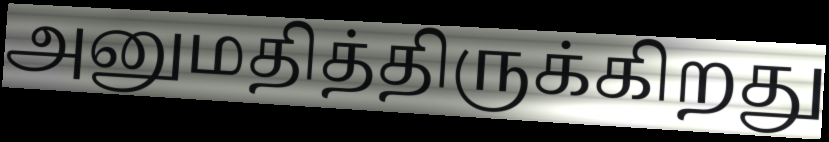
அனுமதித்திருக்கிறது